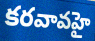
కరవావహై